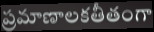
ప్రమాణాలకతీతంగా